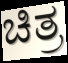
ಚಿತ್ರ